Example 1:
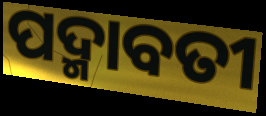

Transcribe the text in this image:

ପଦ୍ମାବତୀ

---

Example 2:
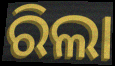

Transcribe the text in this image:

ରିଲା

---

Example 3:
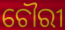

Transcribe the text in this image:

ଚୌରୀ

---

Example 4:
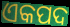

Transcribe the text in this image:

ଏକପଦ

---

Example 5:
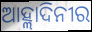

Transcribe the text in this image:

ଆହ୍ଲାଦିନୀର